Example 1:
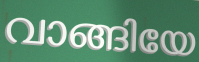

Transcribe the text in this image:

വാങ്ങിയേ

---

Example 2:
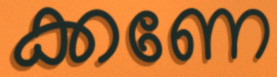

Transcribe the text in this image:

ക്കണേ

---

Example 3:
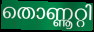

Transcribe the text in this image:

തൊണ്ണൂറ്റി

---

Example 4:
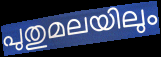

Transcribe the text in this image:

പുതുമലയിലും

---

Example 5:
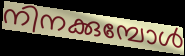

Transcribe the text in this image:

നിനക്കുമ്പോൾ